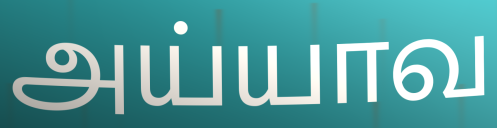
அய்யாவ